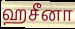
ஹசீனா